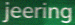
jeering